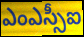
ఎంఎస్సీఐ